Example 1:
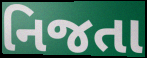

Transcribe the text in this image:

નિજતા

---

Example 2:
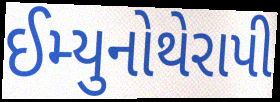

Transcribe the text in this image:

ઈમ્યુનોથેરાપી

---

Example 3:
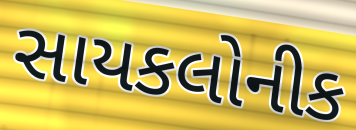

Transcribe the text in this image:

સાયકલોનીક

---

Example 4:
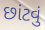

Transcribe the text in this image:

છાંટવું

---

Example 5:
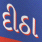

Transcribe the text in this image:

દીઠા